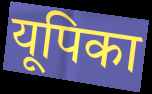
यूपिका